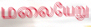
மலையேறு